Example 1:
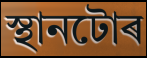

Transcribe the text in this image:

স্থানটোৰ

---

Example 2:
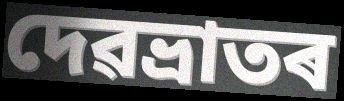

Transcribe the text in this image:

দেৱভ্ৰাতৰ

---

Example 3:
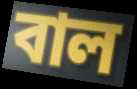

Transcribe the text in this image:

বাল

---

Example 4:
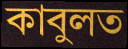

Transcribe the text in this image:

কাবুলত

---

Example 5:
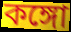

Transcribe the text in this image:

কঙ্গো